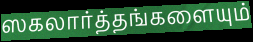
ஸகலார்த்தங்களையும்